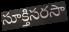
సూక్తిసరసా